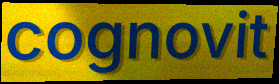
cognovit